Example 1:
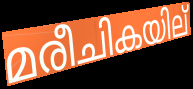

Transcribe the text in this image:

മരീചികയില്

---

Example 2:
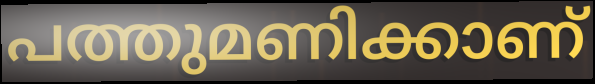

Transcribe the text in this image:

പത്തുമണിക്കാണ്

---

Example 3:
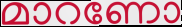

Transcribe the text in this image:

മാറണോ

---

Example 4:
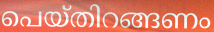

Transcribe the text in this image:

പെയ്തിറങ്ങണം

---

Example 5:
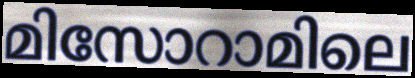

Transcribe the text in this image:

മിസോറാമിലെ